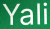
Yali